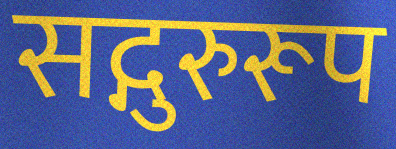
सद्गुरुरूप